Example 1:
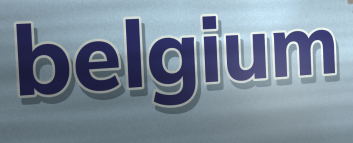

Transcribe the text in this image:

belgium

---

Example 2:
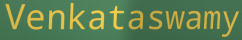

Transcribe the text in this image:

Venkataswamy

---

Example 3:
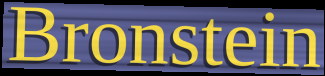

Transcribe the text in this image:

Bronstein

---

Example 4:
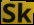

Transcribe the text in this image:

Sk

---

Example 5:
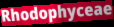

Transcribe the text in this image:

Rhodophyceae